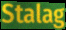
Stalag